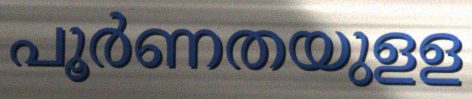
പൂർണതയുളള